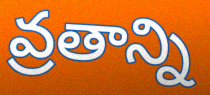
వ్రతాన్ని